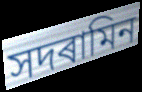
সদৰামিন